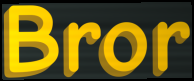
Bror